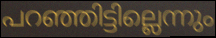
പറഞ്ഞിട്ടില്ലെന്നും